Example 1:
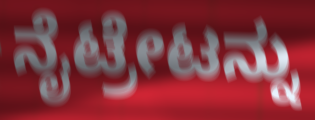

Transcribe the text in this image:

ನೈಟ್ರೇಟನ್ನು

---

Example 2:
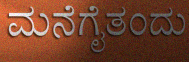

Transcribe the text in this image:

ಮನೆಗೈತಂದು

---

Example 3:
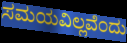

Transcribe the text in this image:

ಸಮಯವಿಲ್ಲವೆಂದು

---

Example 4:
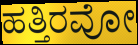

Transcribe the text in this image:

ಹತ್ತಿರವೋ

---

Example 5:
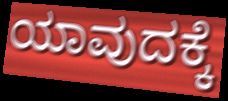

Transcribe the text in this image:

ಯಾವುದಕ್ಕೆ